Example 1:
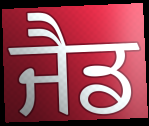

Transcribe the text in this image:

ਜੈਡ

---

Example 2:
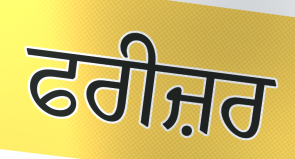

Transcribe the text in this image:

ਫਰੀਜ਼ਰ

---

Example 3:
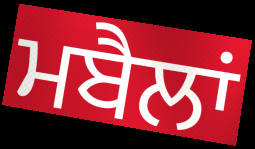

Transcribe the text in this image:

ਮਬੈਲਾਂ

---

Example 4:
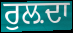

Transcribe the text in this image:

ਰੁਲ਼ਦਾ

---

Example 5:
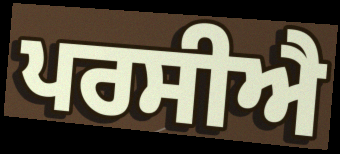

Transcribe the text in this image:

ਪਰਸੀਐ